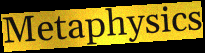
Metaphysics